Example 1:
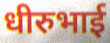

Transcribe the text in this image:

धीरुभाई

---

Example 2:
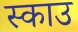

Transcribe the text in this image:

स्काउ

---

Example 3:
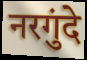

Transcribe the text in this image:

नरगुंदे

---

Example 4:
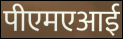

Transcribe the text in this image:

पीएमएआई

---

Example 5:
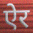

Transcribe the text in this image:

ऐर